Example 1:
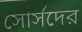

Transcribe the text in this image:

সোর্সদের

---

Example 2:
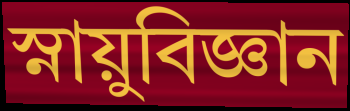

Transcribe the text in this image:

স্নায়ুবিজ্ঞান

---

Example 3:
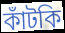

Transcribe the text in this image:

কাঁটকি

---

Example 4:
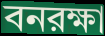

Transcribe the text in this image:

বনরক্ষা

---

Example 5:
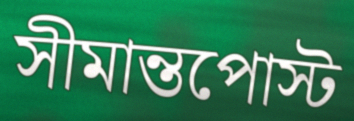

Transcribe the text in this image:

সীমান্তপোস্ট